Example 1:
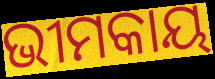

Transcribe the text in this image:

ଭୀମକାୟ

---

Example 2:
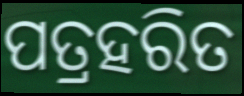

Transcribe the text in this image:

ପତ୍ରହରିତ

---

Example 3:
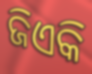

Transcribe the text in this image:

ଜିଏକି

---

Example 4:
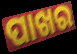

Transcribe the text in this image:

ପାଖର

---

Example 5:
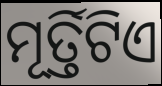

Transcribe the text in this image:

ମୂର୍ତ୍ତିଟିଏ